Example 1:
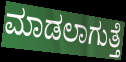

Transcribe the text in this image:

ಮಾಡಲಾಗುತ್ತೆ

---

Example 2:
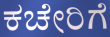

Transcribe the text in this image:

ಕಚೇರಿಗೆ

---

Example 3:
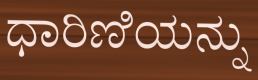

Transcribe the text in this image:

ಧಾರಿಣಿಯನ್ನು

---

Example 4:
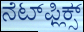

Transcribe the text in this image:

ನೆಟ್‌ಫ್ಲಿಕ್ಸ್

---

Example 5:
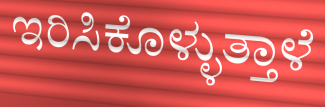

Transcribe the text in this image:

ಇರಿಸಿಕೊಳ್ಳುತ್ತಾಳೆ